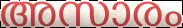
അസാരം